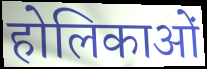
होलिकाओं